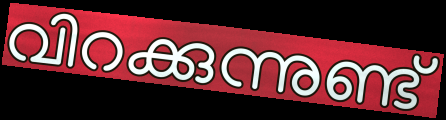
വിറക്കുന്നുണ്ട്